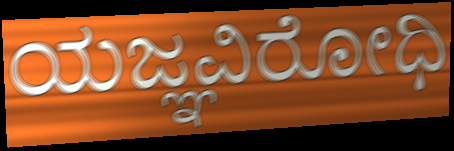
ಯಜ್ಞವಿರೋಧಿ